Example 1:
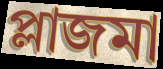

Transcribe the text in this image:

প্লাজমা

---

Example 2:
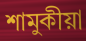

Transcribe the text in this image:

শামুকীয়া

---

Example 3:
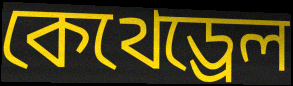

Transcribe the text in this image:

কেথেড্ৰেল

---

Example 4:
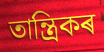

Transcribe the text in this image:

তান্ত্ৰিকৰ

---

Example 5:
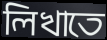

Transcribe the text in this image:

লিখাতে